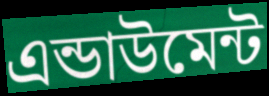
এন্ডাউমেন্ট